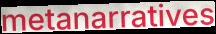
metanarratives